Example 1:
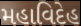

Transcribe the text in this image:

મહાવિદેહ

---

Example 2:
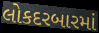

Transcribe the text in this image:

લોકદરબારમાં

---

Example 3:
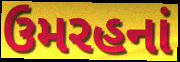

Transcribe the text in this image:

ઉમરહનાં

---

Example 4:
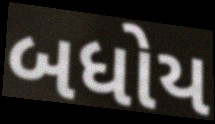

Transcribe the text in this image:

બધોય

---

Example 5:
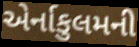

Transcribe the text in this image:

એર્નાકુલમની